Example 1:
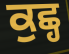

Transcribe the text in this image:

ਕੁਛ੍ਹ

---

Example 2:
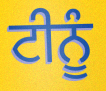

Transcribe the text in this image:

ਟੀਨੂੰ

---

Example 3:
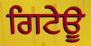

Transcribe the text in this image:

ਗਿਟੇਊ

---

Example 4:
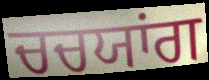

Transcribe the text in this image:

ਚਚਯਾਂਗ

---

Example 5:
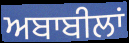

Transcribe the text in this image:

ਅਬਾਬੀਲਾਂ